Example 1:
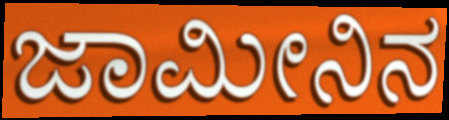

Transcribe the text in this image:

ಜಾಮೀನಿನ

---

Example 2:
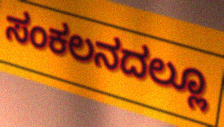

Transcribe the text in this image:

ಸಂಕಲನದಲ್ಲೂ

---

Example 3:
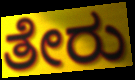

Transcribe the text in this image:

ತೇರು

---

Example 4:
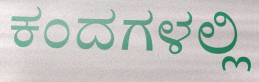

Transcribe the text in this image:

ಕಂದಗಳಲ್ಲಿ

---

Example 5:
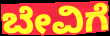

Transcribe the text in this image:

ಬೇವಿಗೆ